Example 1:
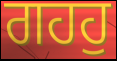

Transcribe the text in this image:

ਗਹਹੁ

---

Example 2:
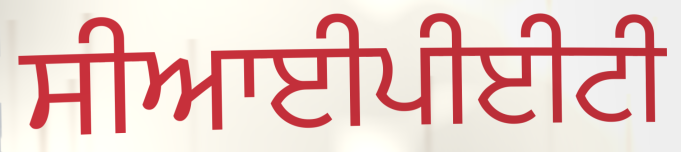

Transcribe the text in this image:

ਸੀਆਈਪੀਈਟੀ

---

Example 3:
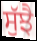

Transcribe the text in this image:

ਸੁੱਝੈ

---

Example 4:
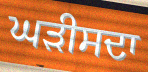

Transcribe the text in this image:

ਘੜੀਸਦਾ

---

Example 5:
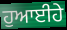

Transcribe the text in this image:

ਹੁਆਈਹੇ